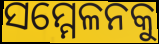
ସମ୍ମେଳନକୁ